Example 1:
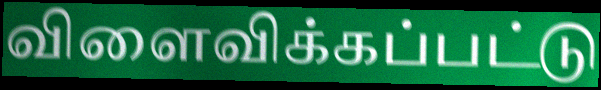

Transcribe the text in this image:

விளைவிக்கப்பட்டு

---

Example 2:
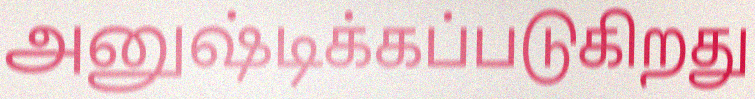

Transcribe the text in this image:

அனுஷ்டிக்கப்படுகிறது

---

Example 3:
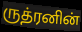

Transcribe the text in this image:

ருத்ரனின்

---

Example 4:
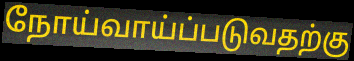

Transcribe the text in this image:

நோய்வாய்ப்படுவதற்கு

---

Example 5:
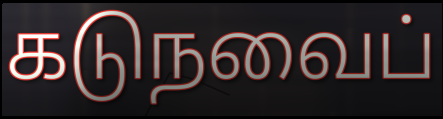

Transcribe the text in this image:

கடுநவைப்